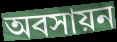
অবসায়ন